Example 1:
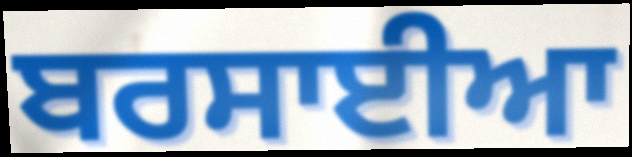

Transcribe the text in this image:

ਬਰਸਾਈਆ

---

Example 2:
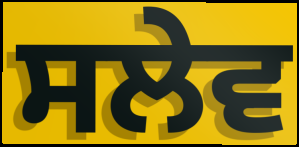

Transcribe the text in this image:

ਸਲੇਵ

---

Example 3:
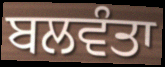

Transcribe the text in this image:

ਬਲਵੰਤਾ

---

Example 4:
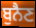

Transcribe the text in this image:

ਬੁਨੈਣ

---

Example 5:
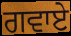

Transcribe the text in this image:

ਗਵਾਏ